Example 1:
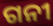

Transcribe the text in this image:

ଗନୀ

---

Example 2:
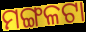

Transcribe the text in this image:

ମଙ୍ଗଳଟା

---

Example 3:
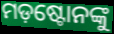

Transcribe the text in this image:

ମଡ଼ଷ୍ଟୋନଙ୍କୁ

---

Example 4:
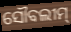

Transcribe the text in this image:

ସୌବଲୀମ୍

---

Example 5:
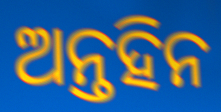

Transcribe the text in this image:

ଅନ୍ତହିନ